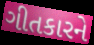
ગીતકારને